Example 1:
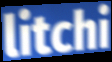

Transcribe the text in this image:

litchi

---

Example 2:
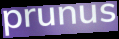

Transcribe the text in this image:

prunus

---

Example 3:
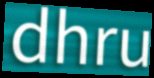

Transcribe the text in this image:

dhru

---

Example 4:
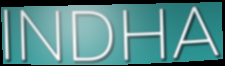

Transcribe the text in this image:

INDHA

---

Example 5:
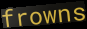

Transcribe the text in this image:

frowns